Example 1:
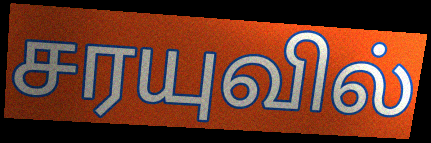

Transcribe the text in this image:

சரயுவில்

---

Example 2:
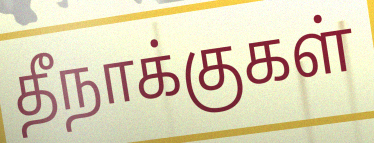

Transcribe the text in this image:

தீநாக்குகள்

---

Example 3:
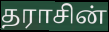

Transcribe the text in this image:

தராசின்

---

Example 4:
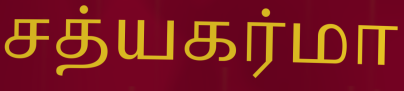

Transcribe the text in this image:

சத்யகர்மா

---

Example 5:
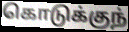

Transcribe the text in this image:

கொடுக்குந்